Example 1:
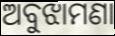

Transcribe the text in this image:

ଅବୁଝାମଣା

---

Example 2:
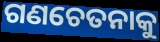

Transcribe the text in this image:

ଗଣଚେତନାକୁ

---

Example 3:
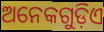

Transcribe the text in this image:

ଅନେକଗୁଡ଼ିଏ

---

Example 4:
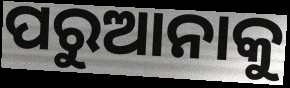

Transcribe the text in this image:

ପରୁଆନାକୁ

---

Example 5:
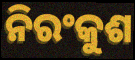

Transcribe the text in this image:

ନିରଂକୁଶ